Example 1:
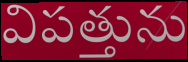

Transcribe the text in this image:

విపత్తును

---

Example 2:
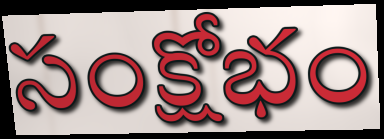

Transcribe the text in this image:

సంక్షోభం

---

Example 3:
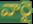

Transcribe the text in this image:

వారై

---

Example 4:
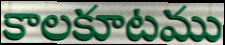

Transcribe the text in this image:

కాలకూటము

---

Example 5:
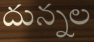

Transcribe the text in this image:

దున్నల